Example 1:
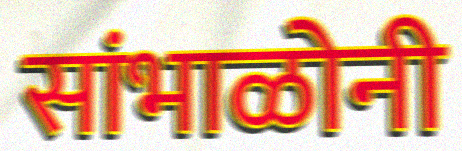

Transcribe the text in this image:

सांभाळोनी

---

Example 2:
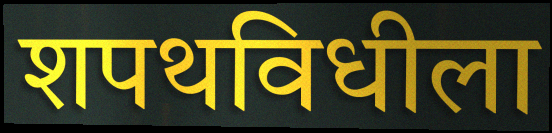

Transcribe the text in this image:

शपथविधीला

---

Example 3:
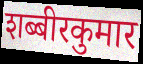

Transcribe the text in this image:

शब्बीरकुमार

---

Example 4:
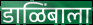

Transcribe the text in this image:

डाळिंबाला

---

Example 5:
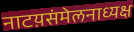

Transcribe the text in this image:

नाटय़संमेलनाध्यक्ष